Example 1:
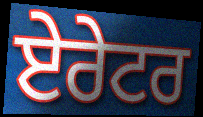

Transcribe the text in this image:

ਏਰੇਟਰ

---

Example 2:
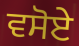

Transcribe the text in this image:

ਵਸੋਏ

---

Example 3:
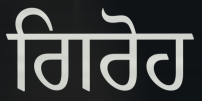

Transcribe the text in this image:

ਗਿਰੋਹ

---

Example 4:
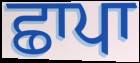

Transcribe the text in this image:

ਛਾਪਾ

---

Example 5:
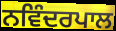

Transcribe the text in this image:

ਨਵਿੰਦਰਪਾਲ